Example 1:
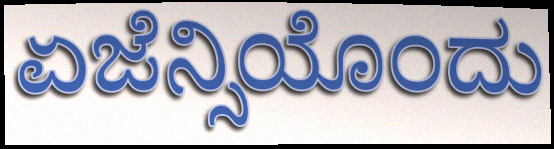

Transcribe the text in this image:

ಏಜೆನ್ಸಿಯೊಂದು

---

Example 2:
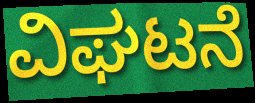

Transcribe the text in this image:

ವಿಘಟನೆ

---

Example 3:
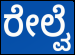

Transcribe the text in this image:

ರೇಲ್ವೆ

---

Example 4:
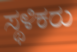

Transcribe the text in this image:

ಸ್ಥಳಿಕರು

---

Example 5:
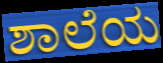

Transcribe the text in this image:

ಶಾಲೆಯ